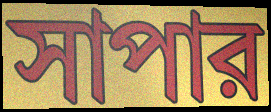
সাপার